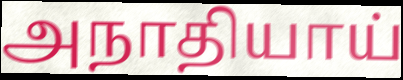
அநாதியாய்